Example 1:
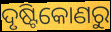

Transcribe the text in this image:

ଦୃଷ୍ଟିକୋଣରୁ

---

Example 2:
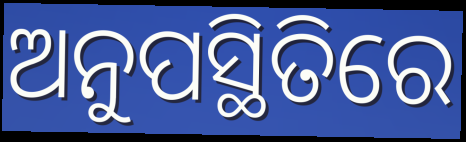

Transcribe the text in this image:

ଅନୁପସ୍ଥିତିରେ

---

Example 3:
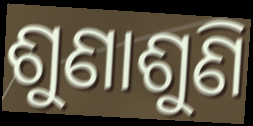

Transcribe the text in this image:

ଶୁଣାଶୁଣି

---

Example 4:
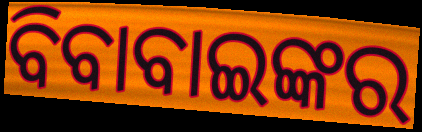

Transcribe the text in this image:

ବିବାବାଇଙ୍କର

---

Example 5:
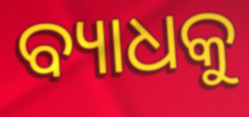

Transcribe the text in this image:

ବ୍ୟାଧକୁ